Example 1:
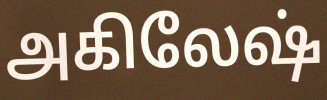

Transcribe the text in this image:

அகிலேஷ்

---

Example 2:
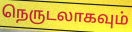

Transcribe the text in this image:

நெருடலாகவும்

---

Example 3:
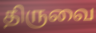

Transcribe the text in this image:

திருவை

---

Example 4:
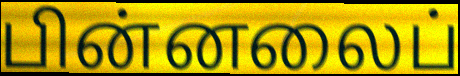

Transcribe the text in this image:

பின்னலைப்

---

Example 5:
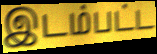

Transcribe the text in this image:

இடம்பட்ட